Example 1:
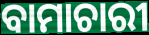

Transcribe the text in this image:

ବାମାଚାରୀ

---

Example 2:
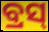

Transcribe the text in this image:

ବ୍ରସ୍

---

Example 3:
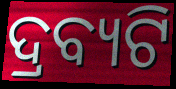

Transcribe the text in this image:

ଦ୍ରବ୍ୟଟି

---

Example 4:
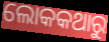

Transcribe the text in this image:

ଲୋକକଥାରୁ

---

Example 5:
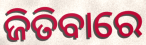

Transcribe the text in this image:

ଜିତିବାରେ